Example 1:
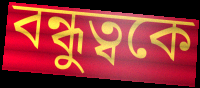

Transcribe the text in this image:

বন্ধুত্বকে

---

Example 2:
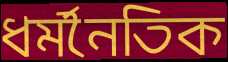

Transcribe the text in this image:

ধর্মনৈতিক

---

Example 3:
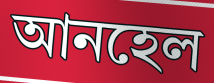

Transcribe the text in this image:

আনহেল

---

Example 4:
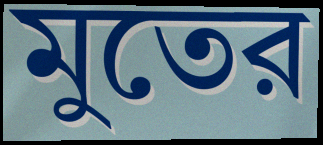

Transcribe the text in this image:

মুতের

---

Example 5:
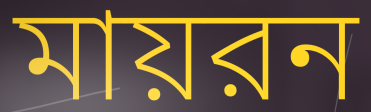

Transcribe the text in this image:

মায়রন